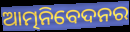
ଆତ୍ମନିବେଦନର